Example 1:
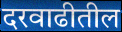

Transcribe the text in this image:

दरवाढीतील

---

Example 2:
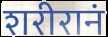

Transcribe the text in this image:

शरीरानं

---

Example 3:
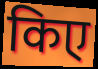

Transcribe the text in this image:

किए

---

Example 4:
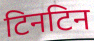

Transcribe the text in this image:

टिनटिन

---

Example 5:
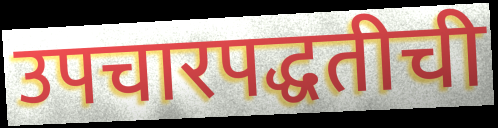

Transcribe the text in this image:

उपचारपद्धतीची